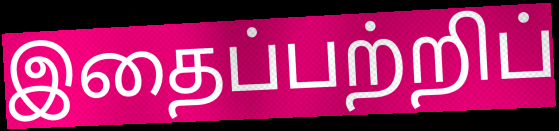
இதைப்பற்றிப்